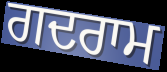
ਗਦਰਾਮ